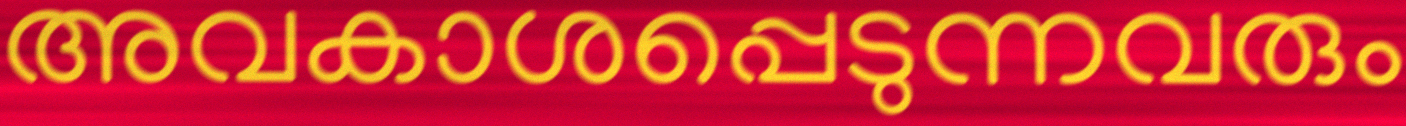
അവകാശപ്പെടുന്നവരും